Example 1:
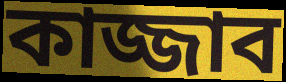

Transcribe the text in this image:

কাজ্জাব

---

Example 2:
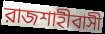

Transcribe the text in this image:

রাজশাহীবাসী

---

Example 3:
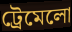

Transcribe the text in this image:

ট্রেমেলো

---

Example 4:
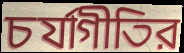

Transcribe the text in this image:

চর্যাগীতির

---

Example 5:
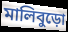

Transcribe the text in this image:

মালিবুড়ো